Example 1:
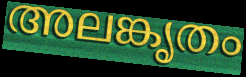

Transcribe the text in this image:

അലങ്കൃതം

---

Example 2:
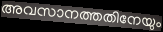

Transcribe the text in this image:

അവസാനത്തതിനേയും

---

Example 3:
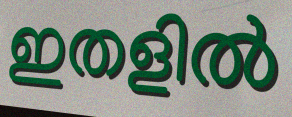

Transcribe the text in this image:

ഇതളിൽ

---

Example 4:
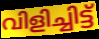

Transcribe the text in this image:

വിളിച്ചിട്ട്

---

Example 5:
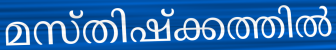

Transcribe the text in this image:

മസ്തിഷ്ക്കത്തിൽ